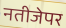
नतीजेपर